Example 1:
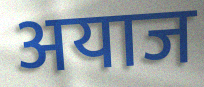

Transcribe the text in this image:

अयाज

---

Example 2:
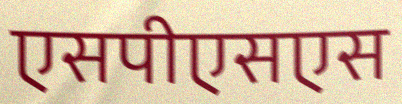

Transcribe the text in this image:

एसपीएसएस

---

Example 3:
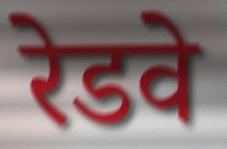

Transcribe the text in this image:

रेडवे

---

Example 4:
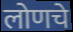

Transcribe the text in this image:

लोणचे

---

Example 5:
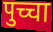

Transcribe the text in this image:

पुच्चा